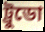
ট্রুডো